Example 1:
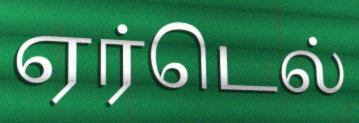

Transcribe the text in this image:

ஏர்டெல்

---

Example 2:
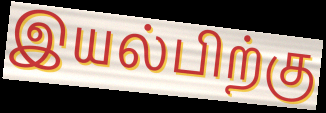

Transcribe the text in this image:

இயல்பிற்கு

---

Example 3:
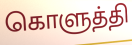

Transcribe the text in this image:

கொளுத்தி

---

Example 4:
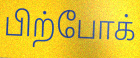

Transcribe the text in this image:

பிற்போக்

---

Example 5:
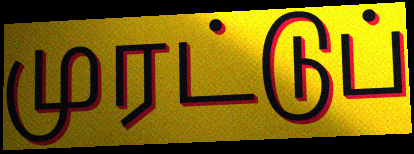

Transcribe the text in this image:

முரட்டுப்